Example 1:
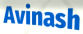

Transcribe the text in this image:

Avinash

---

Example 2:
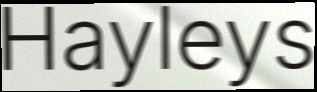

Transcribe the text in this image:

Hayleys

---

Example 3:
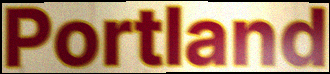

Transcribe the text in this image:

Portland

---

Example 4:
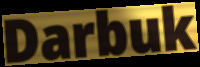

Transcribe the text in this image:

Darbuk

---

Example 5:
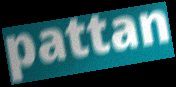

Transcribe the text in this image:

pattan